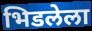
भिडलेला